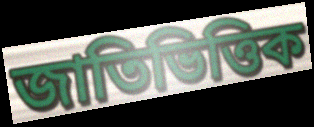
জাতিভিত্তিক